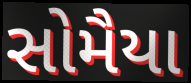
સોમૈયા